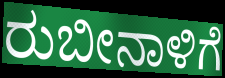
ರುಬೀನಾಳಿಗೆ